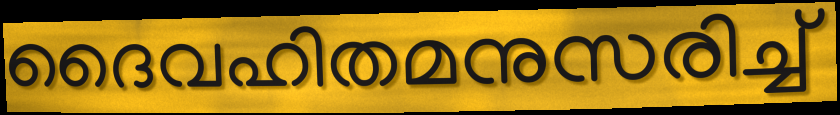
ദൈവഹിതമനുസരിച്ച്